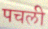
पचली